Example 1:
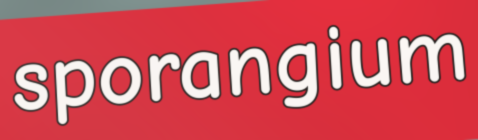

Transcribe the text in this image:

sporangium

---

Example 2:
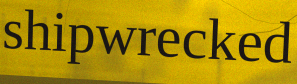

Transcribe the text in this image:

shipwrecked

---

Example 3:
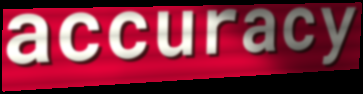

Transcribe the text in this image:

accuracy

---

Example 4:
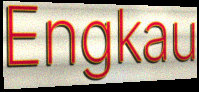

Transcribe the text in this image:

Engkau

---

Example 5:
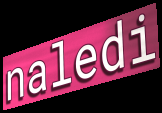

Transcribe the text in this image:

naledi